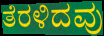
ತೆರಳಿದವು